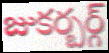
జుకర్బర్గ్